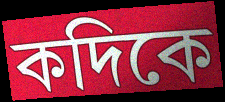
কদিকে